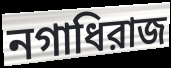
নগাধিরাজ